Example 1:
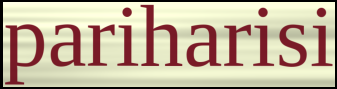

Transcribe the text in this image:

pariharisi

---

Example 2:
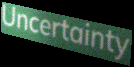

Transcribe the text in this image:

Uncertainty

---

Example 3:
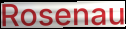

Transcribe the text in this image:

Rosenau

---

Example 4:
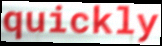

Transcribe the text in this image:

quickly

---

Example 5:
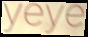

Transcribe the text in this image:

yeye